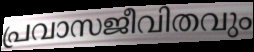
പ്രവാസജീവിതവും